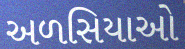
અળસિયાઓ